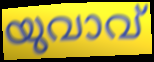
യുവാവ്